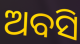
ଅବସି